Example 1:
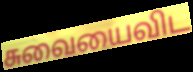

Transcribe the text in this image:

சுவையைவிட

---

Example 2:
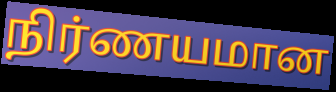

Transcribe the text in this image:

நிர்ணயமான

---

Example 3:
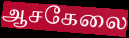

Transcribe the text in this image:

ஆசகேலை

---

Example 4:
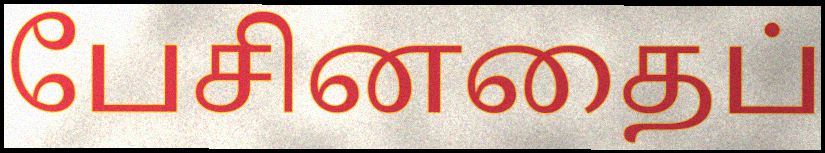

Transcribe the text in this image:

பேசினதைப்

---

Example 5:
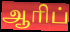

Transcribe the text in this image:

ஆரிப்